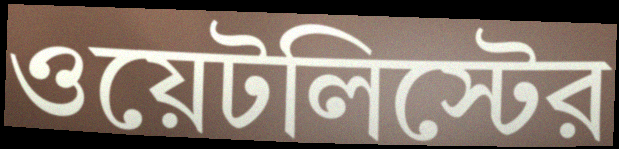
ওয়েটলিস্টের